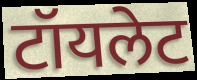
टॉयलेट